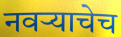
नवऱ्याचेच